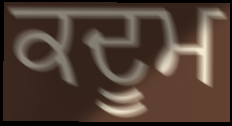
ਕਦੂਮ